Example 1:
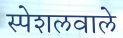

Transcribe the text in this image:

स्पेशलवाले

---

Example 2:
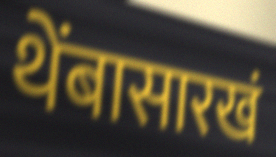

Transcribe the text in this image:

थेंबासारखं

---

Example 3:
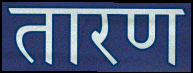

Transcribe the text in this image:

तारण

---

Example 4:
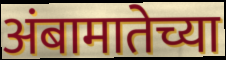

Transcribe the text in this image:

अंबामातेच्या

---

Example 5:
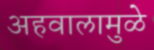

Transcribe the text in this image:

अहवालामुळे